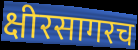
क्षीरसागरच